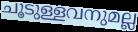
ചൂടുള്ളവനുമല്ല